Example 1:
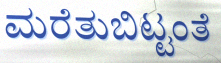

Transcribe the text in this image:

ಮರೆತುಬಿಟ್ಟಂತೆ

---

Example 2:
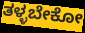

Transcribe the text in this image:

ತಳ್ಳಬೇಕೋ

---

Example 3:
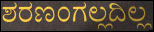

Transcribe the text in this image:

ಶರಣಂಗಲ್ಲದಿಲ್ಲ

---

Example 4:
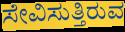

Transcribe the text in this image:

ಸೇವಿಸುತ್ತಿರುವ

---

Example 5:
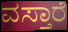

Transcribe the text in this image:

ವಸ್ತಾರೆ